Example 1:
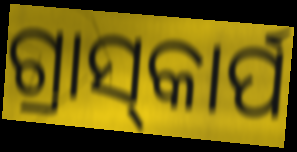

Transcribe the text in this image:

ଗ୍ରାସ୍‌କାର୍ପ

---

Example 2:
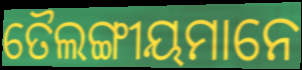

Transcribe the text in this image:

ତୈଲଙ୍ଗୀୟମାନେ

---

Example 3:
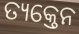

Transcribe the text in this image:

ତ୍ୟକ୍ତେନ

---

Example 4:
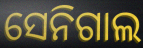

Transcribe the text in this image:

ସେନିଗାଲ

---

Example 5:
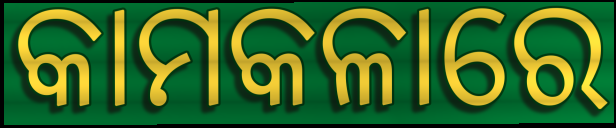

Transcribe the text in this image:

କାମକଳାରେ